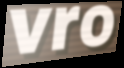
vro